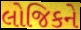
લોજિકને